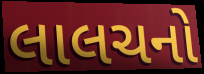
લાલચનો